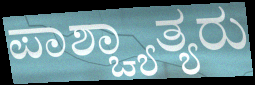
ಪಾಶ್ಚ್ಯಾತ್ಯರು